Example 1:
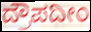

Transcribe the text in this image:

ದ್ರೌಪದೀಂ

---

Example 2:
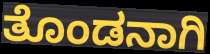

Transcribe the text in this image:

ತೊಂಡನಾಗಿ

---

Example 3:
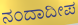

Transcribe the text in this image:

ನಂದಾದೀಪ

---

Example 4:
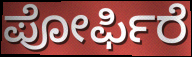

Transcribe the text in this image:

ಪೋರ್ಫಿರೆ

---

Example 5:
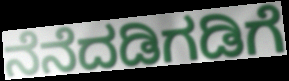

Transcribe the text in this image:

ನೆನೆದಡಿಗಡಿಗೆ